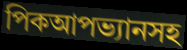
পিকআপভ্যানসহ